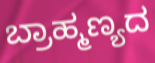
ಬ್ರಾಹ್ಮಣ್ಯದ